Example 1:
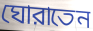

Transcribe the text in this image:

ঘোরাতেন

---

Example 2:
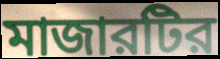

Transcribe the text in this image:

মাজারটির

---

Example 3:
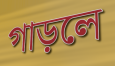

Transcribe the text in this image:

গাড়লে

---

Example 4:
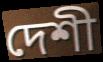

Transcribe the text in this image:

দেশী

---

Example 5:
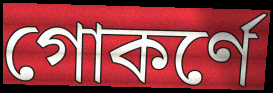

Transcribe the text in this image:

গোকর্ণে